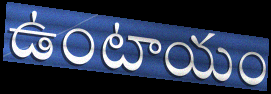
ఉంటాయం